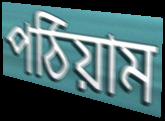
পঠিয়াম